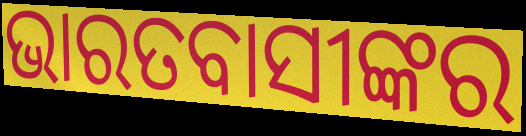
ଭାରତବାସୀଙ୍କର